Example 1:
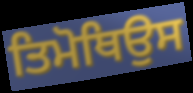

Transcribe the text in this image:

ਤਿਮੋਥਿਉਸ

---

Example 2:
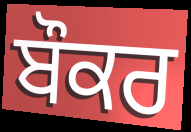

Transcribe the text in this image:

ਬੌਕਰ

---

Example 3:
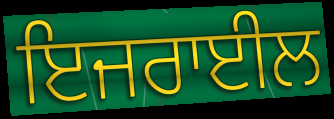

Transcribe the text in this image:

ਇਜਰਾਈਲ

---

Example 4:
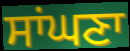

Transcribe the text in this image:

ਸਾਂਘਣਾ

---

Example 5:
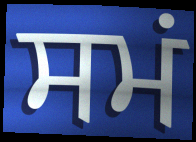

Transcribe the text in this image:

ਸਮਂ